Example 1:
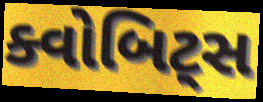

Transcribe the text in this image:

ક્વોબિટ્સ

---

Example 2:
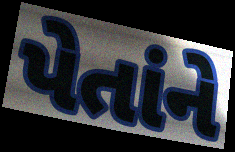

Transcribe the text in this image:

પેતાંને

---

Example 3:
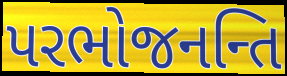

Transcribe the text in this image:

પરભોજનન્તિ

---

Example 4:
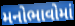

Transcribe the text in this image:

મનોભાવોમાં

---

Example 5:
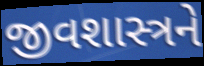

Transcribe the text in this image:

જીવશાસ્ત્રને